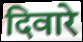
दिवारे